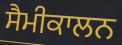
ਸੈਮੀਕਾਲਨ